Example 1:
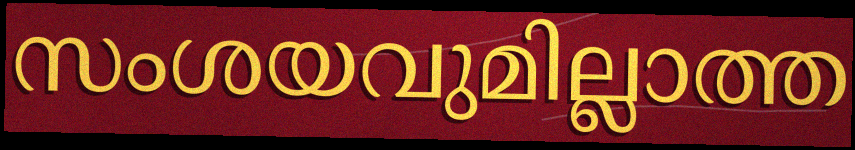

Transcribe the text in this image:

സംശയവുമില്ലാത്ത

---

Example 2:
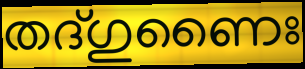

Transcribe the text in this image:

തദ്ഗുണൈഃ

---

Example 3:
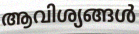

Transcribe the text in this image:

ആവിശ്യങ്ങൾ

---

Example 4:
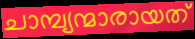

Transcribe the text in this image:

ചാമ്പ്യന്മാരായത്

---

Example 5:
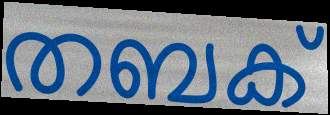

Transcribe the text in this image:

തബക്